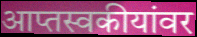
आप्तस्वकीयांवर